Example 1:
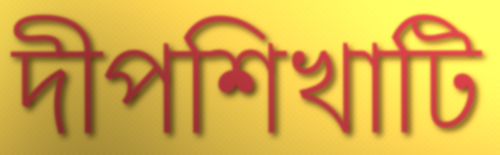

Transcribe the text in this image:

দীপশিখাটি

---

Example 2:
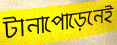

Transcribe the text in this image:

টানাপোড়েনেই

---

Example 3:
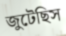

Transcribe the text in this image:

জুটেছিস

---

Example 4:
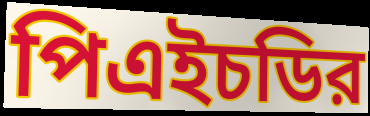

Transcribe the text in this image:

পিএইচডির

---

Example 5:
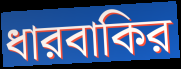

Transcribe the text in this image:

ধারবাকির